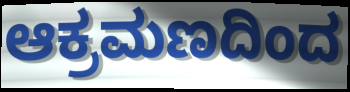
ಆಕ್ರಮಣದಿಂದ